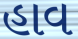
હાવ